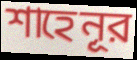
শাহেনূর